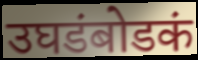
उघडंबोडकं